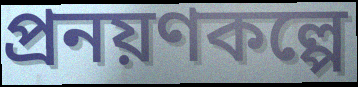
প্রনয়ণকল্পে